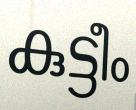
കുട്ടീം